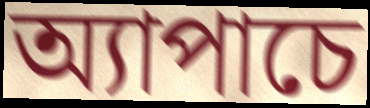
অ্যাপাচে